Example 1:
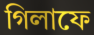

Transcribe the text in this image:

গিলাফে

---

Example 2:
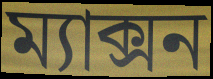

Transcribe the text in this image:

ম্যাক্সন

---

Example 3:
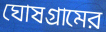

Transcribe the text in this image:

ঘোষগ্রামের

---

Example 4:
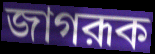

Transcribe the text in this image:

জাগরূক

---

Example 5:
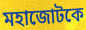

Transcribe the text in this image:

মহাজোটকে